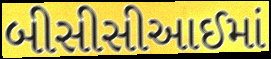
બીસીસીઆઈમાં